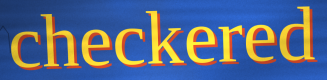
checkered